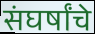
संघर्षांचे